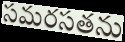
సమరసతను